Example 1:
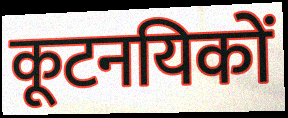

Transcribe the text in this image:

कूटनयिकों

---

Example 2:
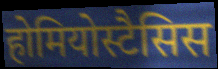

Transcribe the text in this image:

होमियोस्टैसिस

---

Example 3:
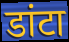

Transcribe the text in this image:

डांटा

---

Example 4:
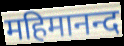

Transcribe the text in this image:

महिमानन्द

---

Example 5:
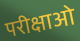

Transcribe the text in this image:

परीक्षाओ